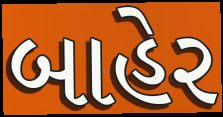
બાહેર